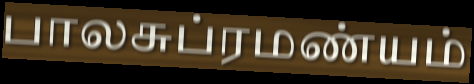
பாலசுப்ரமண்யம்